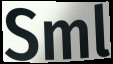
Sml